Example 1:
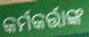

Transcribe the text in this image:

କର୍ମକର୍ତ୍ତାଙ୍କ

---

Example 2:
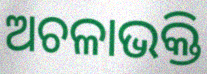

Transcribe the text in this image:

ଅଚଳାଭକ୍ତି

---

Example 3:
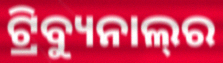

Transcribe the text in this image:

ଟ୍ରିବ୍ୟୁନାଲ୍‍ର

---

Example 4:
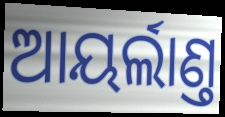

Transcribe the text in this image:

ଆୟର୍ଲାଣ୍ତ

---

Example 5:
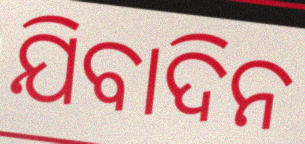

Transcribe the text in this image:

ଯିବାଦିନ